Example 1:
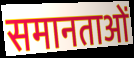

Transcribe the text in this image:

समानताओं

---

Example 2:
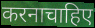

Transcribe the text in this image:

करनाचाहिए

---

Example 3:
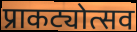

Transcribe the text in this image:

प्राकट्योत्सव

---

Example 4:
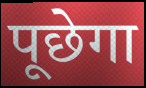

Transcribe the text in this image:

पूछेगा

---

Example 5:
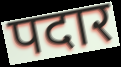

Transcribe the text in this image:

पदार